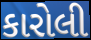
કારોલી